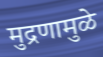
मुद्रणामुळे